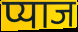
प्याज